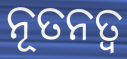
ନୂତନତ୍ୱ